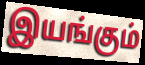
இயங்கும்